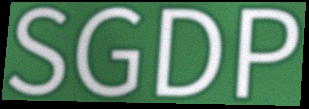
SGDP